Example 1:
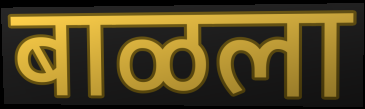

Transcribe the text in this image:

बाळला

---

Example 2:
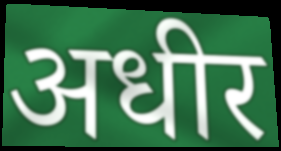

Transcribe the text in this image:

अधीर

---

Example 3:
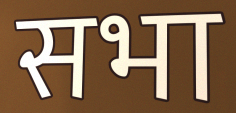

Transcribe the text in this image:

सभा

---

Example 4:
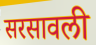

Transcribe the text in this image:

सरसावली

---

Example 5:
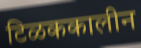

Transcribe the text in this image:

टिळककालीन